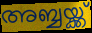
അബ്ബയ്ക്ക്